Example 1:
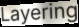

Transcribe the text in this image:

Layering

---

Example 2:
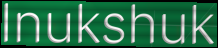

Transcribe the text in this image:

Inukshuk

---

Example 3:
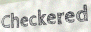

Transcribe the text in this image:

Checkered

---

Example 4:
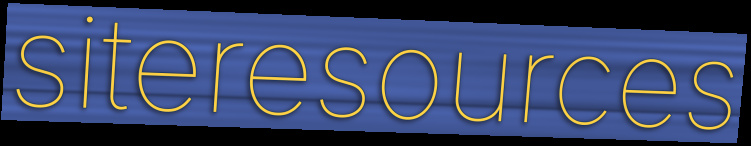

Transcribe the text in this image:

siteresources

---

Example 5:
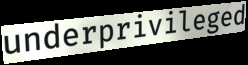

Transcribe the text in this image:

underprivileged